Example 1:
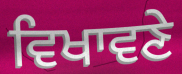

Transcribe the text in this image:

ਵਿਖਾਵਣੇ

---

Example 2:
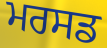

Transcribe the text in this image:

ਮਰਸਡ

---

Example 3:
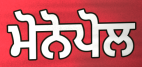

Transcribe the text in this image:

ਮੋਨੋਪੋਲ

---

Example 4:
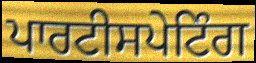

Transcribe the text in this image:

ਪਾਰਟੀਸਪੇਟਿੰਗ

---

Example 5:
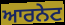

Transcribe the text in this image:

ਆਰਨੇਟ